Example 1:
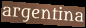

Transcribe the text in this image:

argentina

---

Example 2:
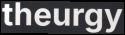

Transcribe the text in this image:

theurgy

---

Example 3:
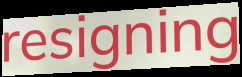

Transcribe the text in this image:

resigning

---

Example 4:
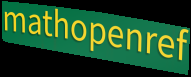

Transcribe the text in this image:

mathopenref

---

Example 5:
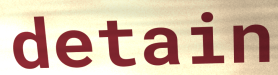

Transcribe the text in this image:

detain